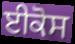
ਈਕੋਸ